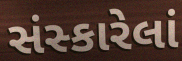
સંસ્કારેલાં